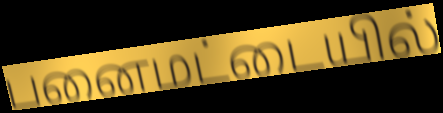
பனைமட்டையில்